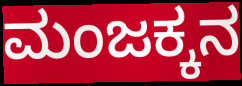
ಮಂಜಕ್ಕನ